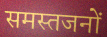
समस्तजनों